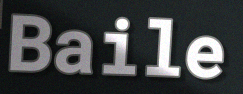
Baile